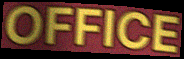
OFFICE